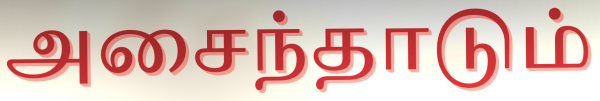
அசைந்தாடும்